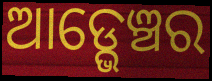
ଆଡ୍ଭେଞ୍ଚର